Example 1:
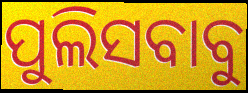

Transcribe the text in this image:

ପୁଲିସବାବୁ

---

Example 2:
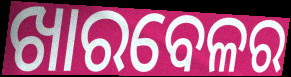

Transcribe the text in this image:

ଖାରବେଳର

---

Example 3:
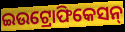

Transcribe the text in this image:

ଇଉଟ୍ରୋଫିକେସନ୍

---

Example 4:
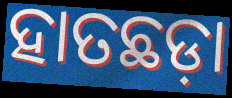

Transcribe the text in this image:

ହାତଛଡ଼ା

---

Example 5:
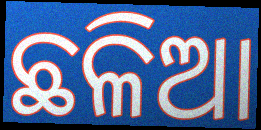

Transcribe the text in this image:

ଛଳିଆ